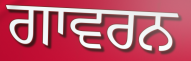
ਗਾਵਰਨ